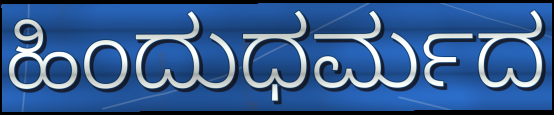
ಹಿಂದುಧರ್ಮದ